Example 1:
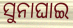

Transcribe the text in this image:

ସୁନାଘାଇ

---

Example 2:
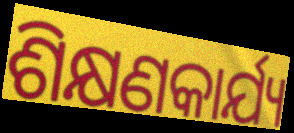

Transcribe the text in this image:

ଶିକ୍ଷଣକାର୍ଯ୍ୟ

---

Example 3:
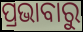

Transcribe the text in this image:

ପ୍ରଭାବାରୁ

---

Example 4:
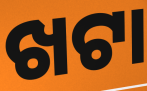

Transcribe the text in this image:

ଖଟା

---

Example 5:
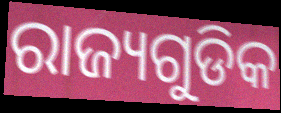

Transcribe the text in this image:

ରାଜ୍ୟଗୁଡିକ